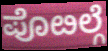
ಪೊೞಲ್ಗೆ